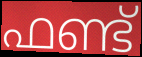
ഫണ്ട്